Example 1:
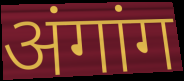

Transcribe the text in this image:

अंगांग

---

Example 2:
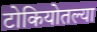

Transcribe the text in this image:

टोकियोतल्या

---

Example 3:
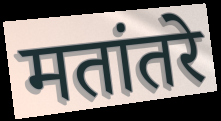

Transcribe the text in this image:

मतांतरे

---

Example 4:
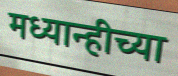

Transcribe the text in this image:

मध्यान्हीच्या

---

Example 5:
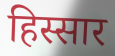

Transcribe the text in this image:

हिस्सार